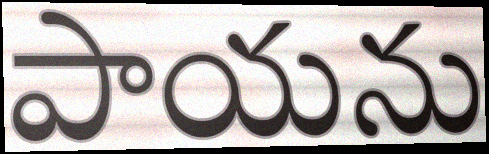
పాయను